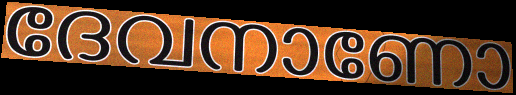
ദേവനാണോ